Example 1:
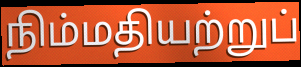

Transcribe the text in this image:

நிம்மதியற்றுப்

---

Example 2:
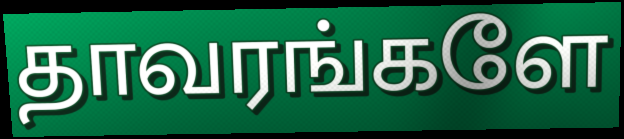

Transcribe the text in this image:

தாவரங்களே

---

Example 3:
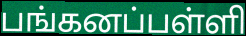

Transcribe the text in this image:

பங்கனப்பள்ளி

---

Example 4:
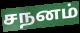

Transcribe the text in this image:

சநனம்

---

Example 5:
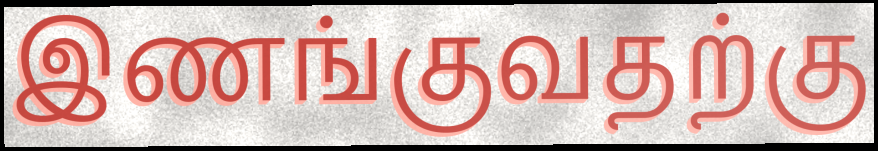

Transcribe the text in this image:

இணங்குவதற்கு